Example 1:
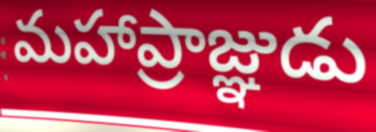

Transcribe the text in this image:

మహాప్రాజ్ఞుడు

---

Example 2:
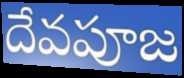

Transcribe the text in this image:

దేవపూజ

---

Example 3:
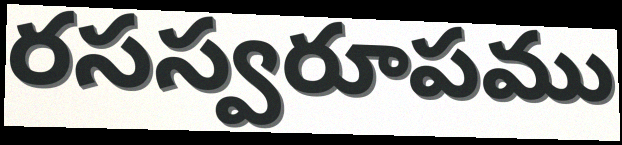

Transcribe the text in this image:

రసస్వరూపము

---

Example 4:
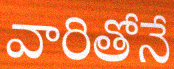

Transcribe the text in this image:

వారితోనే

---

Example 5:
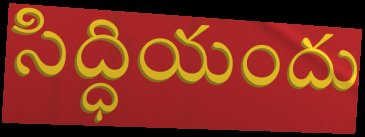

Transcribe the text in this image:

సిద్ధియందు